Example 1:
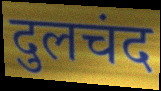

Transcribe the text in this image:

दुलचंद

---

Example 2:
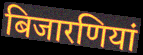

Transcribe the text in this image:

बिजारणियां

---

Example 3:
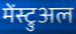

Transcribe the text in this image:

मेंस्ट्रुअल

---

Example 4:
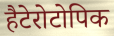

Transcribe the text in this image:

हैटेरोटोपिक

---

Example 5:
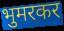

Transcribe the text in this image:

भुमरकर